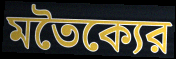
মতৈক্যের